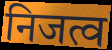
निजत्व